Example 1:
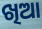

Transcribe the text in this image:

ଖିଆ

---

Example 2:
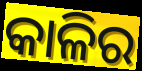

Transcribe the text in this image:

କାଳିର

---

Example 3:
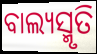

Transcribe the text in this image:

ବାଲ୍ୟସ୍ମୃତି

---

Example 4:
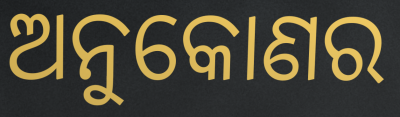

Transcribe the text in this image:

ଅନୁକୋଣର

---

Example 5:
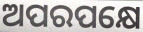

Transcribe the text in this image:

ଅପରପକ୍ଷେ